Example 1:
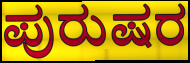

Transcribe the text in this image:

ಪುರುಷರ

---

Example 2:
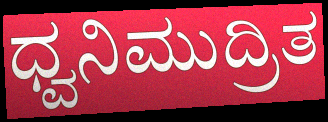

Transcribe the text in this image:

ಧ್ವನಿಮುದ್ರಿತ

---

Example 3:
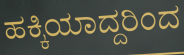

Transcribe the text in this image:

ಹಕ್ಕಿಯಾದ್ದರಿಂದ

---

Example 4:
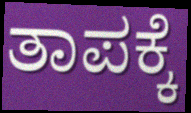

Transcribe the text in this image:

ತಾಪಕ್ಕೆ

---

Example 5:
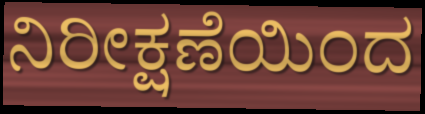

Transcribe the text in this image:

ನಿರೀಕ್ಷಣೆಯಿಂದ